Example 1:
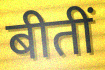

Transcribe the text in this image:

बीतीं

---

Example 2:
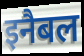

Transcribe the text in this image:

इनैबल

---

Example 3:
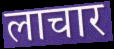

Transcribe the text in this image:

लाचार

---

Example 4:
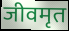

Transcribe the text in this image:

जीवमृत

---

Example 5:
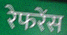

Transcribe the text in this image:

रेफरेंस